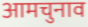
आमचुनाव